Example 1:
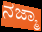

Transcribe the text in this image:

ನಜ್ಮಾ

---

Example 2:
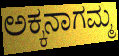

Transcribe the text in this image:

ಅಕ್ಕನಾಗಮ್ಮ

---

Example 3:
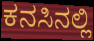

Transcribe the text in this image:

ಕನಸಿನಲ್ಲಿ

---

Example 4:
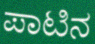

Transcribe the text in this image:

ಪಾಟಿನ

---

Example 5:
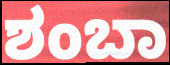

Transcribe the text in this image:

ಶಂಬಾ